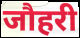
जौहरी